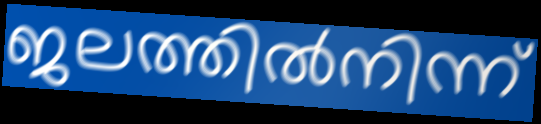
ജലത്തിൽനിന്ന്